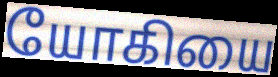
யோகியை